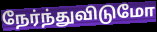
நேர்ந்துவிடுமோ